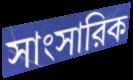
সাংসারিক